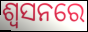
ଶ୍ଵସନରେ